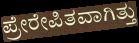
ಪ್ರೇರೇಪಿತವಾಗಿತ್ತು